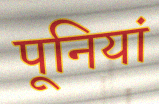
पूनियां